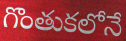
గొంతుకలోనే